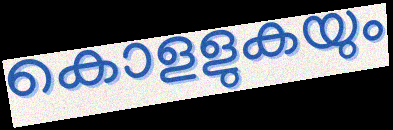
കൊളളുകയും